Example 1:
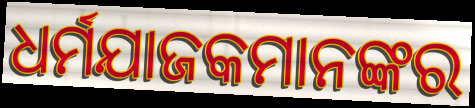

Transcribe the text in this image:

ଧର୍ମଯାଜକମାନଙ୍କର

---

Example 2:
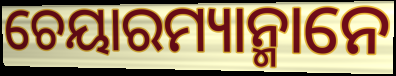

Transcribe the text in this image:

ଚେୟାରମ୍ୟାନ୍ମାନେ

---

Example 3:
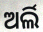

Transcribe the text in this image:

ଅର୍ଲି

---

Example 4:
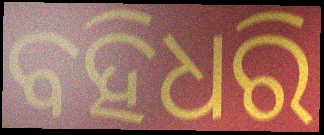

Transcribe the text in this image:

ବହିଧରି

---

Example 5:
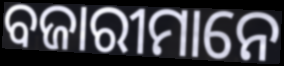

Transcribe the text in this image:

ବଜାରୀମାନେ